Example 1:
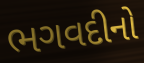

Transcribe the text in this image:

ભગવદીનો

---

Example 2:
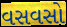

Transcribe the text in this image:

વસવસો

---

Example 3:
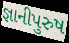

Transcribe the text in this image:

જ્ઞાનીપુરુષ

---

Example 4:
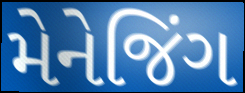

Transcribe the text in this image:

મેનેજિંગ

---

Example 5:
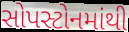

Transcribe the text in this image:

સોપસ્ટોનમાંથી